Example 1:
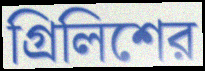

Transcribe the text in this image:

গ্রিলিশের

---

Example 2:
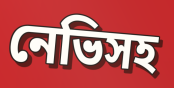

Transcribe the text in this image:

নেভিসহ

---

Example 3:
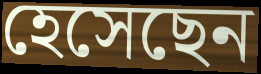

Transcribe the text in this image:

হেসেছেন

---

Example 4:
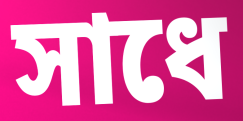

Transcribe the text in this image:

সাধে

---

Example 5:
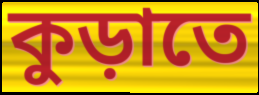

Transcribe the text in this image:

কুড়াতে